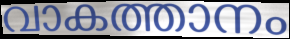
വാകത്താനം